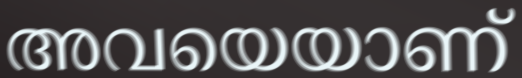
അവയെയാണ്